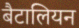
बैटालियन